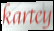
kartey